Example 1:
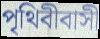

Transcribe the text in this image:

পৃথিবীবাসী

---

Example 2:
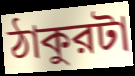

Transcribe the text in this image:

ঠাকুরটা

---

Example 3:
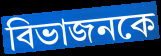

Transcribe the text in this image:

বিভাজনকে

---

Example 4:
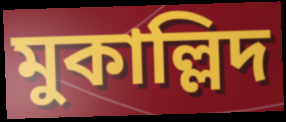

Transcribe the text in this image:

মুকাল্লিদ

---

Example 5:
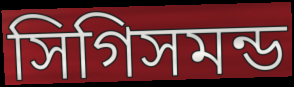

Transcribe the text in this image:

সিগিসমন্ড